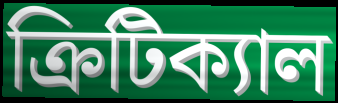
ক্রিটিক্যাল